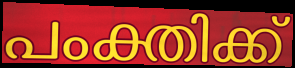
പംക്തിക്ക്